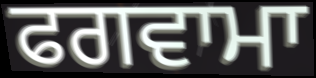
ਫਗਵਾਮਾ